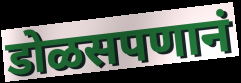
डोळसपणानं